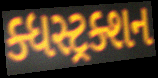
ક્ધસ્ટ્રક્શન